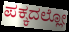
ಪಕ್ಕದಲ್ಲೋ